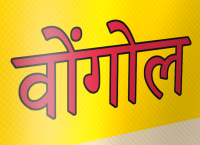
वोंगोल